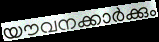
യൗവനക്കാർക്കും